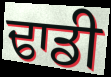
ਢਾਡੀ